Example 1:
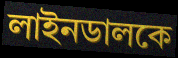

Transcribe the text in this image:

লাইনডালকে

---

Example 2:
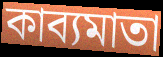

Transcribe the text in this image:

কাব্যমাতা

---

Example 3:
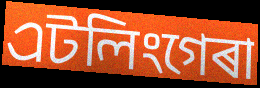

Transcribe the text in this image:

এটলিংগেৰা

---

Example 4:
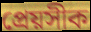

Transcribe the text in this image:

প্ৰেয়সীক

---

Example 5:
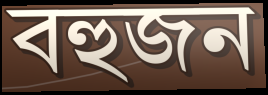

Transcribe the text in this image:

বহুজন